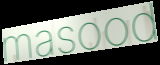
masood